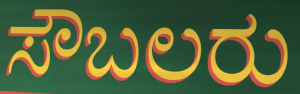
ಸೌಬಲರು